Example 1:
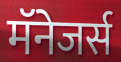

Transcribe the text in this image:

मॅनेजर्स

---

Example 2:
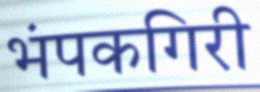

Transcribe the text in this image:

भंपकगिरी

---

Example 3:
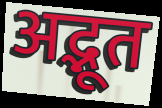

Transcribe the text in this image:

अद्भूत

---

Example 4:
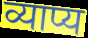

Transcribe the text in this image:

व्याप्य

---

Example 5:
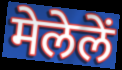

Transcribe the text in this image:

मेलेलें